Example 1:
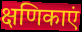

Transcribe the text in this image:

क्षणिकाएं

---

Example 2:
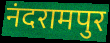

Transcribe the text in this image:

नंदरामपुर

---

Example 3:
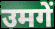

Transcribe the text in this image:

उमगें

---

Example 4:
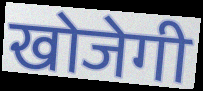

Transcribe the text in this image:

खोजेगी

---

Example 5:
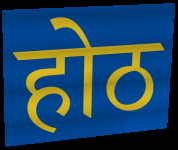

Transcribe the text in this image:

होठ